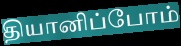
தியானிப்போம்